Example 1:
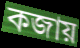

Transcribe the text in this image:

কজায়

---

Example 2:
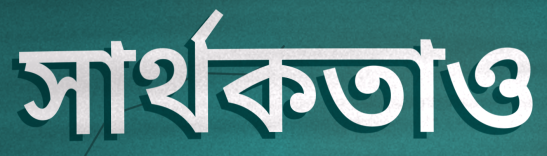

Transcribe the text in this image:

সার্থকতাও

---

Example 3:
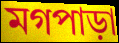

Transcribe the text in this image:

মগপাড়া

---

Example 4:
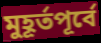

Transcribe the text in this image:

মুহূর্তপূর্বে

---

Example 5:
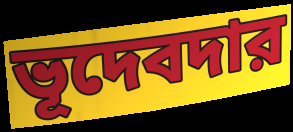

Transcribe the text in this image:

ভূদেবদার